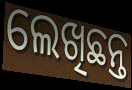
ଲେଖିଛନ୍ତ